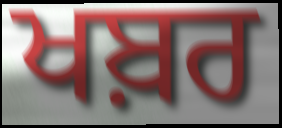
ਖਬ਼ਰ